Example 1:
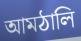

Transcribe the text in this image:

আমঠালি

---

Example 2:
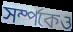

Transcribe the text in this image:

সৰ্ম্পকেও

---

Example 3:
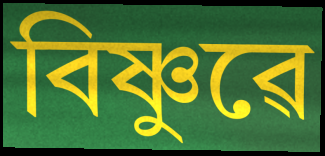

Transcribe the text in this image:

বিষ্ণুৱে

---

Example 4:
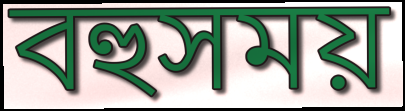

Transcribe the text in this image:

বহুসময়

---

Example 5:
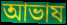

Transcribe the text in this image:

আভাষ